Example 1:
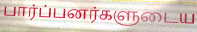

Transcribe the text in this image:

பார்ப்பனர்களுடைய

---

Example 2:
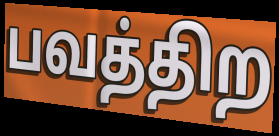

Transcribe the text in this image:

பவத்திற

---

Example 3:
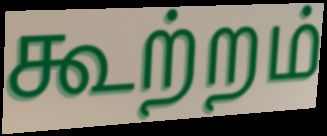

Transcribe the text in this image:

கூற்றம்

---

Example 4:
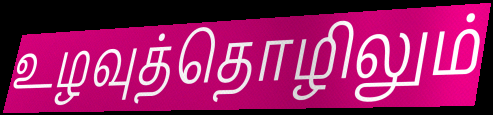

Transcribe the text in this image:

உழவுத்தொழிலும்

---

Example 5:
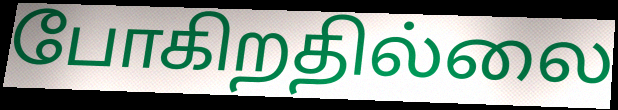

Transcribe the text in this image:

போகிறதில்லை